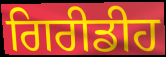
ਗਿਰੀਡੀਹ